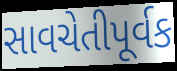
સાવચેતીપૂર્વક